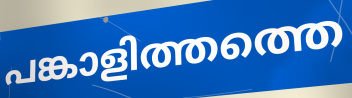
പങ്കാളിത്തത്തെ